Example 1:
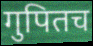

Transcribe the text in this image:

गुपितच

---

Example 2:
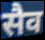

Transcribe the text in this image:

सैव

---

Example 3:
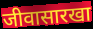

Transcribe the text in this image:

जीवासारखा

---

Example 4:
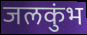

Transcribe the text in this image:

जलकुंभ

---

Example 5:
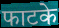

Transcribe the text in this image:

फाटके